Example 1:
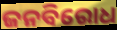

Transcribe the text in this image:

ଜନବିରୋଧ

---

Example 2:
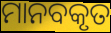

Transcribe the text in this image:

ମାନବକୃତ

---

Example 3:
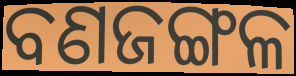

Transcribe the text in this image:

ବଣଜଙ୍ଗଳ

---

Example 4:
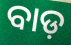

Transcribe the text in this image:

ବାଡ଼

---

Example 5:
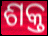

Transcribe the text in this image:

ଶକ୍ତ